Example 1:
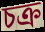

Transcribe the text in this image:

চক্র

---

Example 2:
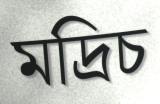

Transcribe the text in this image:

মদ্রিচ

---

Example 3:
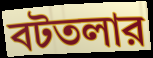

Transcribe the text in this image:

বটতলার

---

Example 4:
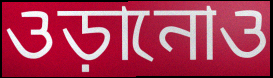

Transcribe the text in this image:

ওড়ানোও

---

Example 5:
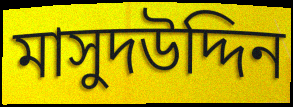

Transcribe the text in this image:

মাসুদউদ্দিন